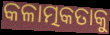
କଳାତ୍ମକତାକୁ